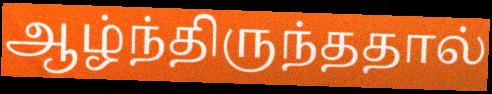
ஆழ்ந்திருந்ததால்